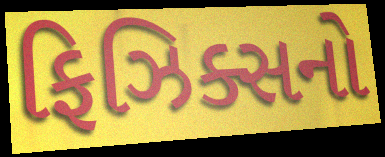
ફિઝિક્સનો